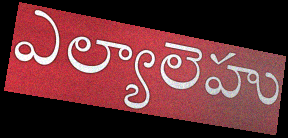
ఎల్యాలెహు